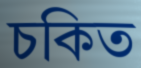
চকিত